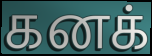
கனக்